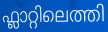
ഫ്ലാറ്റിലെത്തി